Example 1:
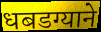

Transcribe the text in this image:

धबडग्याने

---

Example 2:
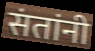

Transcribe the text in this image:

संतांनी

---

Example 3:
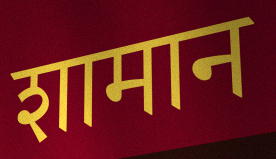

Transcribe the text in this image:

शामान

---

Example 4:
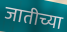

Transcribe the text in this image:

जातीच्या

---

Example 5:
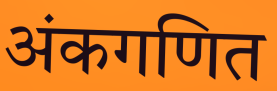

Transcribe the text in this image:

अंकगणित